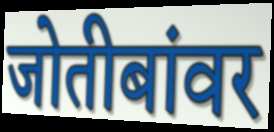
जोतीबांवर